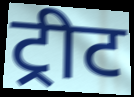
ट्रीट